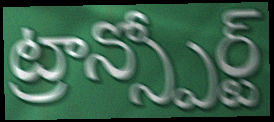
ట్రాన్స్పోర్ట్